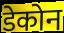
डेकोन